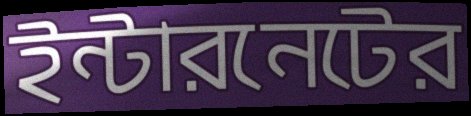
ইন্টারনেটের